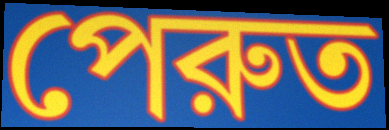
পেরুত